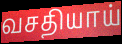
வசதியாய்